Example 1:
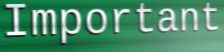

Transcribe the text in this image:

Important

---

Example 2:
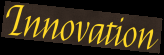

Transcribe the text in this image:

Innovation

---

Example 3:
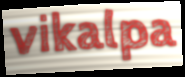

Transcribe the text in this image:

vikalpa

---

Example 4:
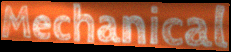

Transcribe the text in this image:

Mechanical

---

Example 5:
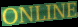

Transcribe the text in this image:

ONLINE